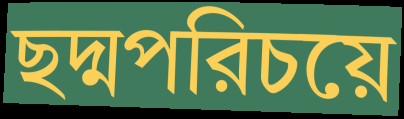
ছদ্মপরিচয়ে